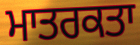
ਮਾਤਰਕਤਾ